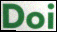
Doi